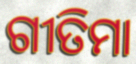
ଗୀତିମା